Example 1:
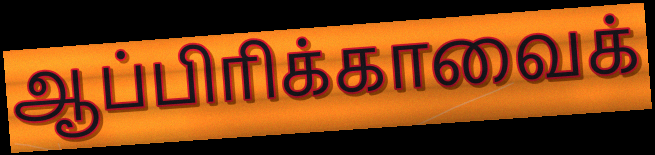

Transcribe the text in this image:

ஆப்பிரிக்காவைக்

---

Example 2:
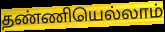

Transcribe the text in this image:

தண்ணியெல்லாம்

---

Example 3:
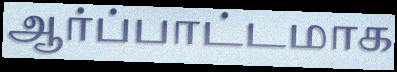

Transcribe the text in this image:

ஆர்ப்பாட்டமாக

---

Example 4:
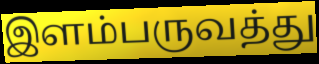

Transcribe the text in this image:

இளம்பருவத்து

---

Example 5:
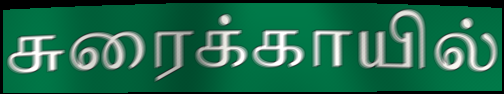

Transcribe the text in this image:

சுரைக்காயில்